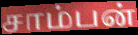
சாம்பன்